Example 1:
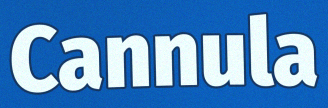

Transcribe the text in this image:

Cannula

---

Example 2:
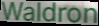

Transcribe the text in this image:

Waldron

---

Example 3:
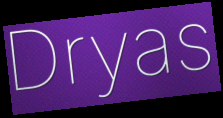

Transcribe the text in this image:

Dryas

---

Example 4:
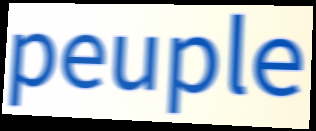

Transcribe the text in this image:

peuple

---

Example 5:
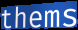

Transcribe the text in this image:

thems